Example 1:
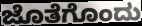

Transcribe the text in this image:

ಜೊತೆಗೊಂದು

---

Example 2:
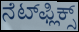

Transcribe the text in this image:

ನೆಟ್‌ಫ್ಲಿಕ್ಸ್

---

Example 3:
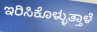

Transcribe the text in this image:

ಇರಿಸಿಕೊಳ್ಳುತ್ತಾಳೆ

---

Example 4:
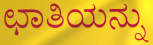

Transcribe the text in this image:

ಛಾತಿಯನ್ನು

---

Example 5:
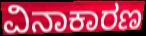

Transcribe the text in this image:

ವಿನಾಕಾರಣ